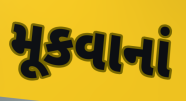
મૂકવાનાં